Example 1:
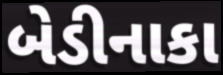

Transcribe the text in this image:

બેડીનાકા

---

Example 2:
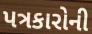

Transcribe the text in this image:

પત્રકારોની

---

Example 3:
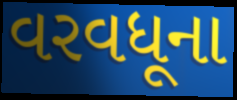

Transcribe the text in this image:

વરવધૂના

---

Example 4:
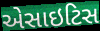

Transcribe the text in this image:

એસાઇટિસ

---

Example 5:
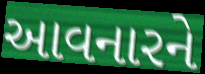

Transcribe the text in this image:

આવનારને